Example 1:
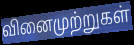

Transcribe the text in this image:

வினைமுற்றுகள்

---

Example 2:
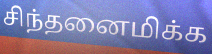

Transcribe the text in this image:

சிந்தனைமிக்க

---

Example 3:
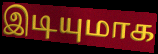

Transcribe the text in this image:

இடியுமாக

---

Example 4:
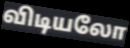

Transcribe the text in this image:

விடியலோ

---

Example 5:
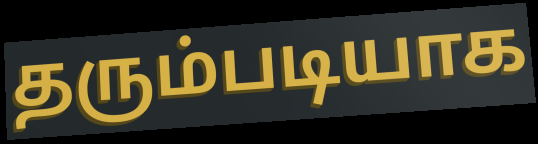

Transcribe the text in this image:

தரும்படியாக